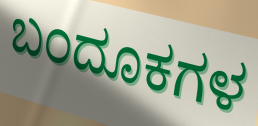
ಬಂದೂಕಗಳ